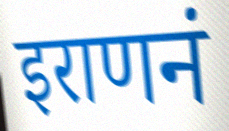
इराणनं